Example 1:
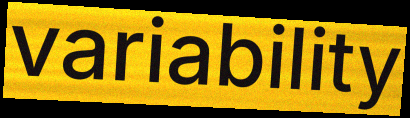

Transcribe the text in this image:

variability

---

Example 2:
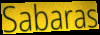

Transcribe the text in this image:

Sabaras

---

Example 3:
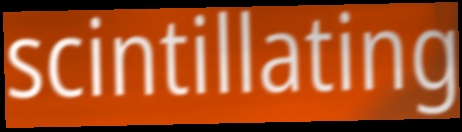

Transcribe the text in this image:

scintillating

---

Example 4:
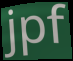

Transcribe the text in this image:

jpf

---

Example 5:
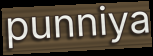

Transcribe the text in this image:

punniya